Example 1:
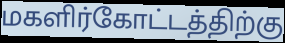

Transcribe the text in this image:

மகளிர்கோட்டத்திற்கு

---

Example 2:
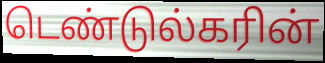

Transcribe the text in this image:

டெண்டுல்கரின்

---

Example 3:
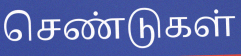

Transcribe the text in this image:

செண்டுகள்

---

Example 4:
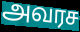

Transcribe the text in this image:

அவரச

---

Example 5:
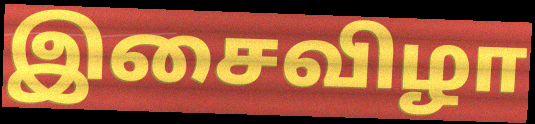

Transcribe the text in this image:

இசைவிழா